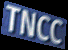
TNCC